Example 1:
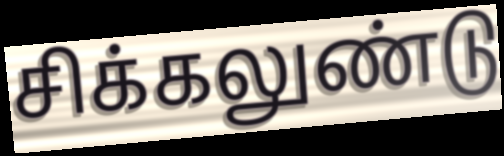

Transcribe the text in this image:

சிக்கலுண்டு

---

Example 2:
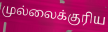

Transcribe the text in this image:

முல்லைக்குரிய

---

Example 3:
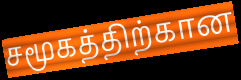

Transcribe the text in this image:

சமூகத்திற்கான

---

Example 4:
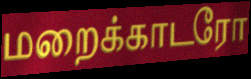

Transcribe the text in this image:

மறைக்காடரோ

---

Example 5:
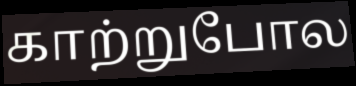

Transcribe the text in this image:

காற்றுபோல